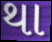
થા